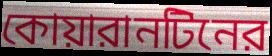
কোয়ারানটিনের